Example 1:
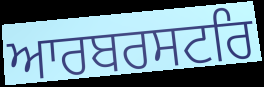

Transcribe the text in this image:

ਆਰਬਰਸਟਰਿ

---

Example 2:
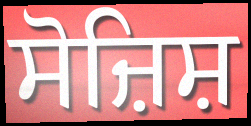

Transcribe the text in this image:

ਸੋਜ਼ਿਸ਼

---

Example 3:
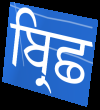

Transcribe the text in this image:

ਬ੍ਰਿਛ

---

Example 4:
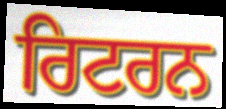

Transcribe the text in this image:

ਰਿਟਰਨ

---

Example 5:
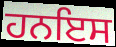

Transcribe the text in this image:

ਹਨਇਸ